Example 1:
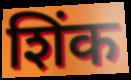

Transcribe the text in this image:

शिंक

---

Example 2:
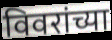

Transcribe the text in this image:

विवरांच्या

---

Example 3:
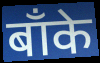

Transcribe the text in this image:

बाँके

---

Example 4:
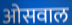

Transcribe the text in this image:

ओसवाल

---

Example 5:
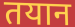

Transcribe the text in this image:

तयान